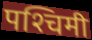
पश्चिमी